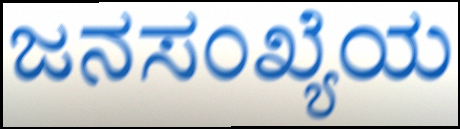
ಜನಸಂಖ್ಯೆಯ